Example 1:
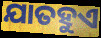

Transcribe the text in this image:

ଯାତହୁଏ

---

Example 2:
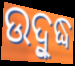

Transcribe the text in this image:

ଉଦ୍ବୁଦ୍ଧ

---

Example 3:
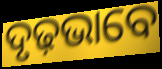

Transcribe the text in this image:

ଦୃଢ଼ଭାବେ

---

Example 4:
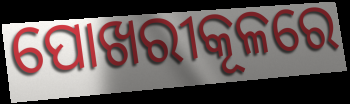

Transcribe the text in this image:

ପୋଖରୀକୂଳରେ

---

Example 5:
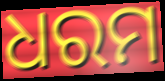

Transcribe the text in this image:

ଧରମ